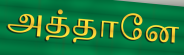
அத்தானே